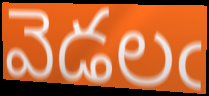
వెడలఁ